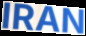
IRAN